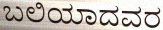
ಬಲಿಯಾದವರ